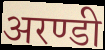
अरण्डी